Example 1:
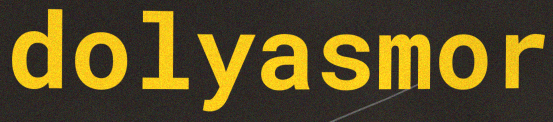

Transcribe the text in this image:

dolyasmor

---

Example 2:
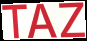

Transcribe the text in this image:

TAZ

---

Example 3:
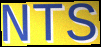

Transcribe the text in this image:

NTS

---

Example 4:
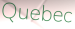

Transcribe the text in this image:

Quebec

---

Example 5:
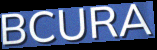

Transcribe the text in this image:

BCURA